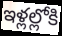
ఇళ్లల్లోకి